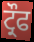
ਟ੍ਰੌਫ